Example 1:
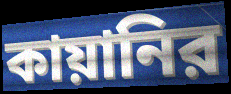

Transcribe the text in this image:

কায়ানির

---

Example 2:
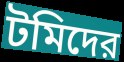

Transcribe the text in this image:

টমিদের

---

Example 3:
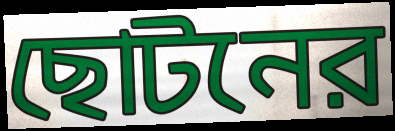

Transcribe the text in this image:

ছোটনের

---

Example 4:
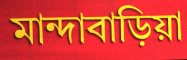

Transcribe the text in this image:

মান্দাবাড়িয়া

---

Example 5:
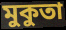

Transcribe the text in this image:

মুকুতা